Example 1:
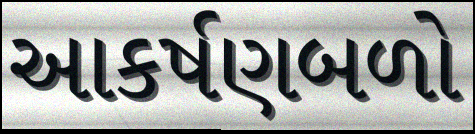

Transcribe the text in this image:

આકર્ષણબળો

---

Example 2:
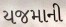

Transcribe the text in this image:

યજમાની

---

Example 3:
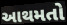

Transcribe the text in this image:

આથમતો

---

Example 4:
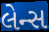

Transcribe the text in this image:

લેન્સ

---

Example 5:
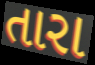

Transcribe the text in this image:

તારા